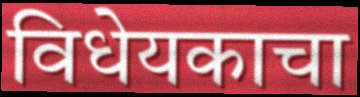
विधेयकाचा